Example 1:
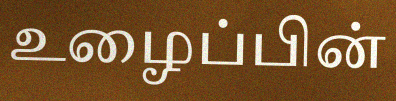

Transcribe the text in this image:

உழைப்பின்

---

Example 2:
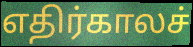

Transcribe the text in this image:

எதிர்காலச்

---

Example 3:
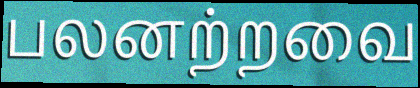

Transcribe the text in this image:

பலனற்றவை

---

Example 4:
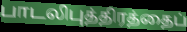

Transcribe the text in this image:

பாடலிபுத்திரத்தைப்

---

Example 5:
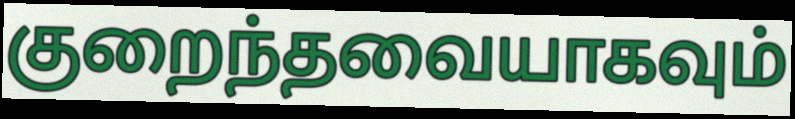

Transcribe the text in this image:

குறைந்தவையாகவும்